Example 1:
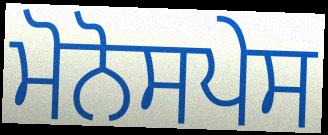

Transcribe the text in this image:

ਮੋਨੋਸਪੇਸ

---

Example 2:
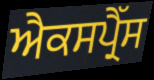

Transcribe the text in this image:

ਐਕਸਪ੍ਰੈੱਸ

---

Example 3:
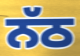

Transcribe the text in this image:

ਨੱਠ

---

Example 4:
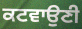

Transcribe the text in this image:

ਕਟਵਾਉਣੀ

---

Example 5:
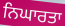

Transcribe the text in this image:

ਨਿਘਾਰਤਾ